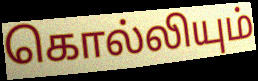
கொல்லியும்